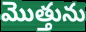
మొత్తును